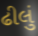
ઢીલું